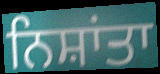
ਨਿਸ਼ਾਂਤਾ